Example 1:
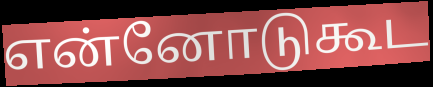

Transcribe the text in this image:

என்னோடுகூட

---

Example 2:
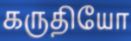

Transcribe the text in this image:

கருதியோ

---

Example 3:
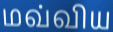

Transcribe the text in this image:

மவ்விய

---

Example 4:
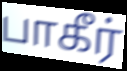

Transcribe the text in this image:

பாகீர்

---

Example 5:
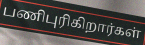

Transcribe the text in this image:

பணிபுரிகிறார்கள்